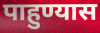
पाहुण्यास